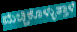
ಮೆಚ್ಚಿಕೊಳ್ಳುತ್ತಾಳೆ